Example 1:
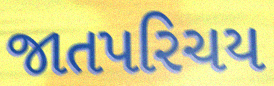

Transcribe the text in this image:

જાતપરિચય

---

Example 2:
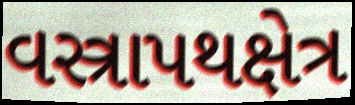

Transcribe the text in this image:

વસ્ત્રાપથક્ષેત્ર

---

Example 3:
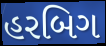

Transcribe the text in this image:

હરબિગ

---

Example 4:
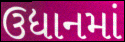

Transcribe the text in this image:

ઉદ્યાનમાં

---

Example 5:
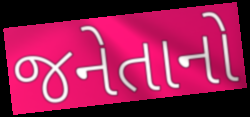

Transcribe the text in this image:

જનેતાનો